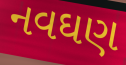
નવઘણ